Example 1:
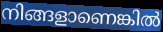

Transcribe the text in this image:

നിങ്ങളാണെങ്കിൽ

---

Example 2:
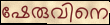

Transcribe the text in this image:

ഷേരുവിനെ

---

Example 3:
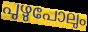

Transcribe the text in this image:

പുഴുപോലും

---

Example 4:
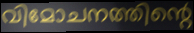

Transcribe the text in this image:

വിമോചനത്തിന്റെ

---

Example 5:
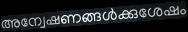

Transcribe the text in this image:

അന്വേഷണങ്ങൾക്കുശേഷം